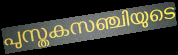
പുസ്തകസഞ്ചിയുടെ